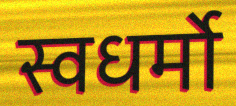
स्वधर्मो